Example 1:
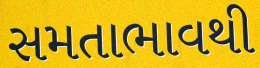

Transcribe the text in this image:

સમતાભાવથી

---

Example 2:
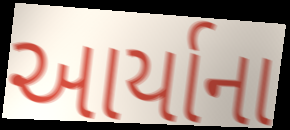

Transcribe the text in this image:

આર્યાના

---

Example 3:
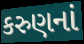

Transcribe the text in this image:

કરુણનાં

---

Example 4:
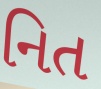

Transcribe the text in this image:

નિત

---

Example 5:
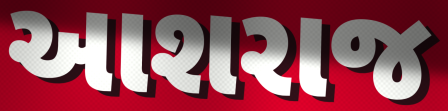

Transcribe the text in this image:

આશરાજ